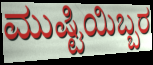
ಮುಷ್ಟಿಯಿಬ್ಬರ